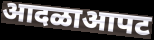
आदळाआपट